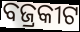
ବଜ୍ରକୀଟ